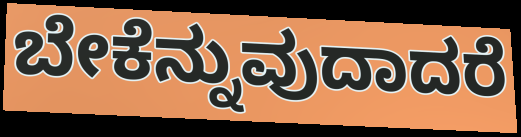
ಬೇಕೆನ್ನುವುದಾದರೆ